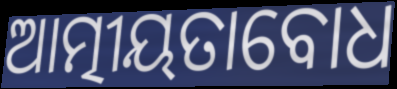
ଆତ୍ମୀୟତାବୋଧ